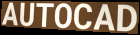
AUTOCAD